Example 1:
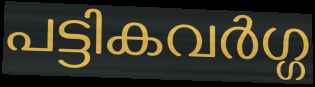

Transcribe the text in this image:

പട്ടികവർഗ്ഗ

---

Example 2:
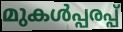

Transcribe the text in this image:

മുകൾപ്പരപ്പ്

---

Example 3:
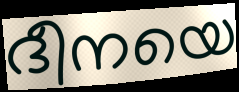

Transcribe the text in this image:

ദീനയെ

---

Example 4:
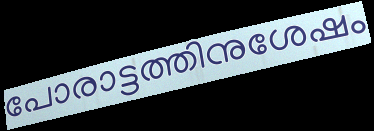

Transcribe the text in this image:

പോരാട്ടത്തിനുശേഷം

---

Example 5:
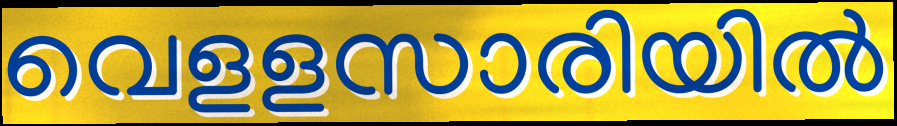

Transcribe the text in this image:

വെളളസാരിയിൽ